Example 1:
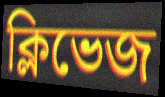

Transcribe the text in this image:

ক্লিভেজ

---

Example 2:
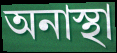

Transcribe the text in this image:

অনাস্থা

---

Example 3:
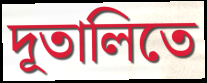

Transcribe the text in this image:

দূতালিতে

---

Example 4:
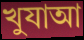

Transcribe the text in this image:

খুযাআ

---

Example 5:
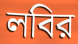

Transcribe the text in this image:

লবির